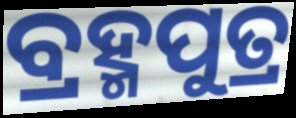
ବ୍ରହ୍ମପୁତ୍ର